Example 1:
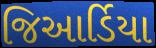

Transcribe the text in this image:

જિઆર્ડિયા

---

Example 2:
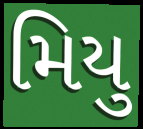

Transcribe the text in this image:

મિયુ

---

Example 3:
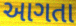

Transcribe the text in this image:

આગતા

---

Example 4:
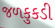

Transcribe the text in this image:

જળકુકડી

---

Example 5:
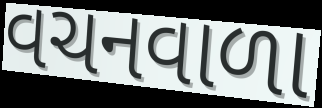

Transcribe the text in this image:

વચનવાળા